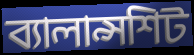
ব্যালান্সশিট